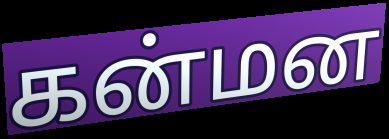
கன்மன